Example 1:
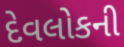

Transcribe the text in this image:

દેવલોકની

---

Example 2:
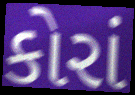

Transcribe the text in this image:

કોરાં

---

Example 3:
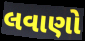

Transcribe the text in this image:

લવાણો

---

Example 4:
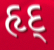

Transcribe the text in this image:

હૃદ્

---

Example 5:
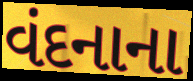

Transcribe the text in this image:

વંદનાના